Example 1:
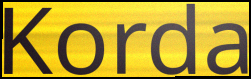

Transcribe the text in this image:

Korda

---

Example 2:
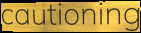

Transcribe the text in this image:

cautioning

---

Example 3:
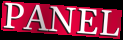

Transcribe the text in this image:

PANEL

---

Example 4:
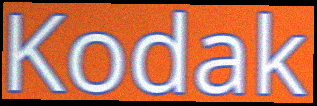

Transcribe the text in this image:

Kodak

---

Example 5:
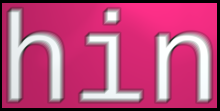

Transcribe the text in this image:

hin